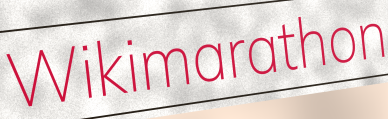
Wikimarathon